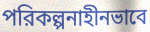
পরিকল্পনাহীনভাবে